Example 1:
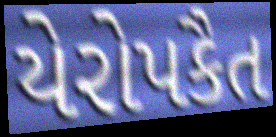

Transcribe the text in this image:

યેરોપકૈત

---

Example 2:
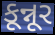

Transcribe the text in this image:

કૂન્નૂર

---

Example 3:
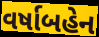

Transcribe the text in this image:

વર્ષાબહેન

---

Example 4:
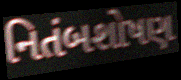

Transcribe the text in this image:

નિતંબશોષણ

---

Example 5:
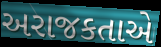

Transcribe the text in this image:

અરાજકતાએ